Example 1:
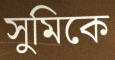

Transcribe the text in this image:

সুমিকে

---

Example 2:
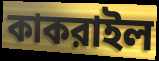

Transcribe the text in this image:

কাকরাইল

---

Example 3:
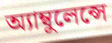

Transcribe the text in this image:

অ্যাম্বুলেন্সে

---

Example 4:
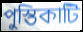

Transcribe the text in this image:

পুস্তিকাটি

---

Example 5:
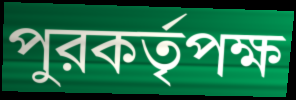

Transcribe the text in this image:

পুরকর্তৃপক্ষ